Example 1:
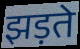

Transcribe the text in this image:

झड़ते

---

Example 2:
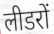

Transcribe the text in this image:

लीडरों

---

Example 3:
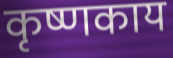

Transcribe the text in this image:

कृष्णकाय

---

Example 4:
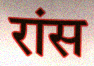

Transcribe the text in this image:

रांस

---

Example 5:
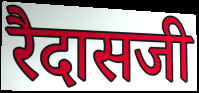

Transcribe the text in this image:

रैदासजी